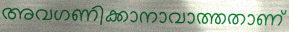
അവഗണിക്കാനാവാത്തതാണ്